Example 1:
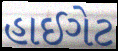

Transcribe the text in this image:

હાઈગેટ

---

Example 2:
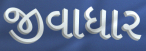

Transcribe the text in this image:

જીવાધાર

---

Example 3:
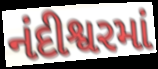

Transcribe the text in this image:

નંદીશ્વરમાં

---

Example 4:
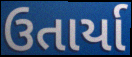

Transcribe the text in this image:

ઉતાર્યા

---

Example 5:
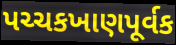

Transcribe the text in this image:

પચ્ચકખાણપૂર્વક